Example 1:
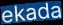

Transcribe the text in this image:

ekada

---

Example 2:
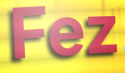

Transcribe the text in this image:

Fez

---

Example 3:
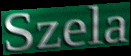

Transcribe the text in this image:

Szela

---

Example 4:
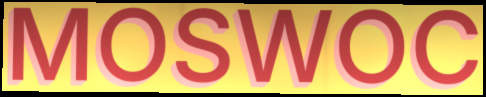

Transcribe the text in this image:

MOSWOC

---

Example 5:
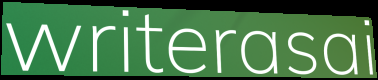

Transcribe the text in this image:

writerasai